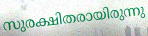
സുരക്ഷിതരായിരുന്നു